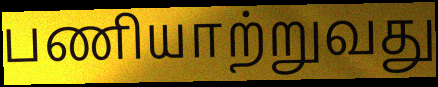
பணியாற்றுவது